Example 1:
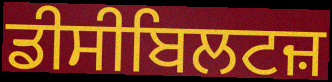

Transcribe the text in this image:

ਡੀਸੀਬਿਲਟਜ਼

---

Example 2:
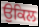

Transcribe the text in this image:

ਉਕਿਲ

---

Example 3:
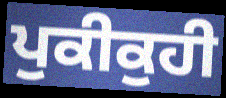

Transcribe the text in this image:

ਪੁਕੀਕੁਹੀ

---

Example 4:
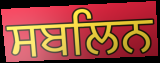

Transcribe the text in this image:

ਸਬਲਿਨ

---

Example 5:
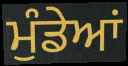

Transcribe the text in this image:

ਮੁੰਡੇਆਂ